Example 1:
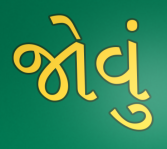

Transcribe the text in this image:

જોવું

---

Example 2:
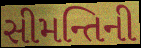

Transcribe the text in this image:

સીમન્તિની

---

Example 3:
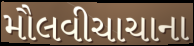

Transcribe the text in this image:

મૌલવીચાચાના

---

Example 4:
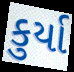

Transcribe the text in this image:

કુર્યા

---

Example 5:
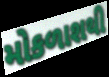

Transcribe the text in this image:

મોકળાશથી